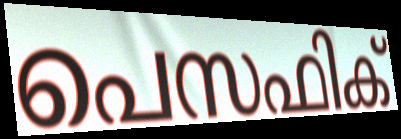
പെസഫിക്